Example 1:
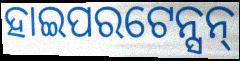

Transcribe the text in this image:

ହାଇପରଟେନ୍ସନ୍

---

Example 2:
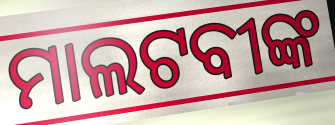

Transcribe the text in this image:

ମାଲଟବୀଙ୍କ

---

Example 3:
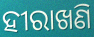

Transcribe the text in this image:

ହୀରାଖଣି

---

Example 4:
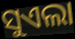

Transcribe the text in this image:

ସୁଏଲା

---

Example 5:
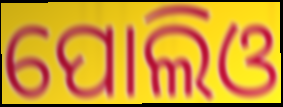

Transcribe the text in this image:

ପୋଲିଓ